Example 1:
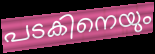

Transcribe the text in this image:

പടകിനെയും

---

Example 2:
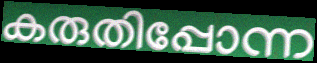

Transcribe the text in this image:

കരുതിപ്പോന്ന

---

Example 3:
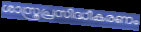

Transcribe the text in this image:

ശാസ്ത്രപ്രസിദ്ധീകരണം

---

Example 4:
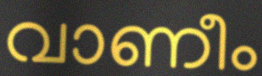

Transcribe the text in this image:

വാണീം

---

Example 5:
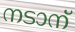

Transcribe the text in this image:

നടാന്